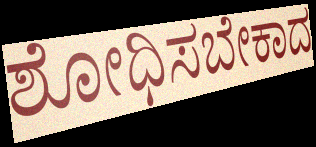
ಶೋಧಿಸಬೇಕಾದ